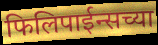
फिलिपाईन्सच्या